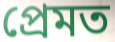
প্ৰেমত